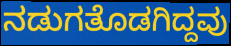
ನಡುಗತೊಡಗಿದ್ದವು